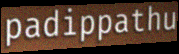
padippathu